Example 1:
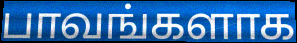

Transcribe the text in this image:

பாவங்களாக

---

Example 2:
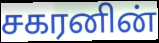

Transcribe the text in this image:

சகரனின்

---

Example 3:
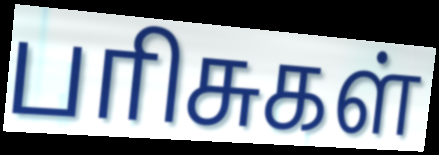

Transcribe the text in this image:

பரிசுகள்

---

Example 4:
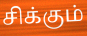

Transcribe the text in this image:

சிக்கும்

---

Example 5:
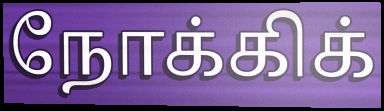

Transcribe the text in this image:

நோக்கிக்